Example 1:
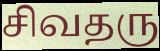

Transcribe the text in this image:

சிவதரு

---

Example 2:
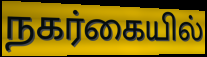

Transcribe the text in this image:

நகர்கையில்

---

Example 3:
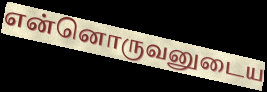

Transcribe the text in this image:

என்னொருவனுடைய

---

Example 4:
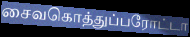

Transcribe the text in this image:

சைவகொத்துப்பரோட்டா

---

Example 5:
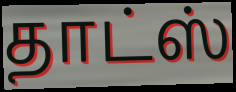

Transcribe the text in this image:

தாட்ஸ்